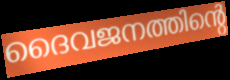
ദൈവജനത്തിന്റെ